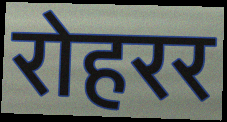
रोहरर